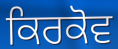
ਕਿਰਕੋਵ